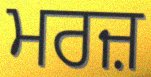
ਮਰਜ਼